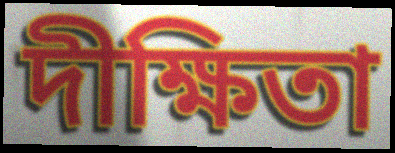
দীক্ষিতা